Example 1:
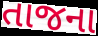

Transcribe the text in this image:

તાજના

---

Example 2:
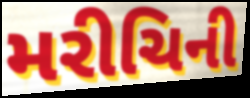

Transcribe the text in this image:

મરીચિની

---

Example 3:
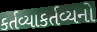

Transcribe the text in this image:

કર્તવ્યાકર્તવ્યનો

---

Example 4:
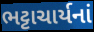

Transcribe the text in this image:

ભટ્ટાચાર્યનાં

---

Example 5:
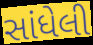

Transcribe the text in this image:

સાંધેલી